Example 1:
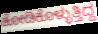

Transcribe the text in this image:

ತೋಡಿಕೊಳ್ಳುತ್ತಿದ್ದ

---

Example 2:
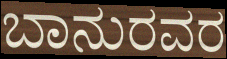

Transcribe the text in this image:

ಬಾನುರವರ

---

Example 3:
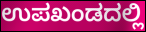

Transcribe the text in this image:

ಉಪಖಂಡದಲ್ಲಿ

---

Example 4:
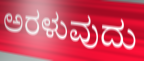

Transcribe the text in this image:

ಅರಳುವುದು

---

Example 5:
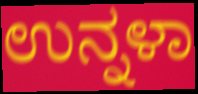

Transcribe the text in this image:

ಉನ್ನಳಾ